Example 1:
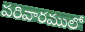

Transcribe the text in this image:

పరివారములో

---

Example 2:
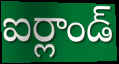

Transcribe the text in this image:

ఐర్లాండ్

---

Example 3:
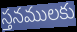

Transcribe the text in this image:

స్తనములకు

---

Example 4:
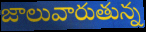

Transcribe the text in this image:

జాలువారుతున్న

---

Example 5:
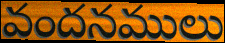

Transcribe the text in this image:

వందనములు